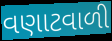
વણાટવાળી